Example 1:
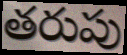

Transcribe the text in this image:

తరుపు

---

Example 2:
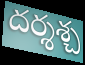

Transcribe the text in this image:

దర్శశ్చ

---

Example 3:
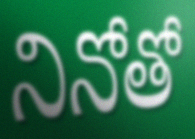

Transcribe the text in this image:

నినోతో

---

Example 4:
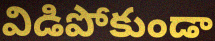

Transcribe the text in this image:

విడిపోకుండా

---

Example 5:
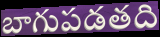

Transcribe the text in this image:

బాగుపడతది